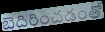
బెదిరించడంతో